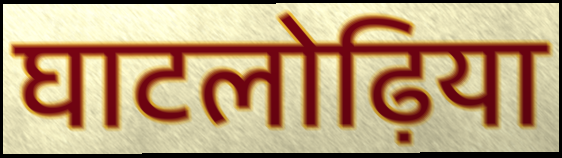
घाटलोढ़िया